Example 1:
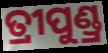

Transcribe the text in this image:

ତ୍ରୀପୁଣ୍ଡ୍ର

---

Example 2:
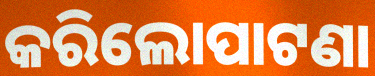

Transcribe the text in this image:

କରିଲୋପାଟଣା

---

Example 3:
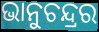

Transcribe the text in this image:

ଭାନୁଚନ୍ଦ୍ରର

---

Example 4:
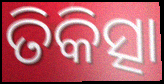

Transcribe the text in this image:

ତିକିତ୍ସା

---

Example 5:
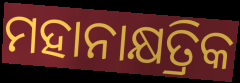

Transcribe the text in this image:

ମହାନାକ୍ଷତ୍ରିକ